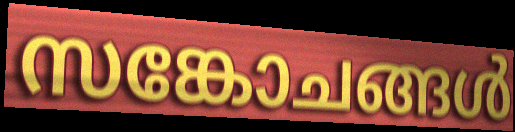
സങ്കോചങ്ങൾ